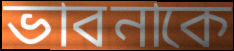
ভাবনাকে